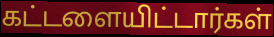
கட்டளையிட்டார்கள்